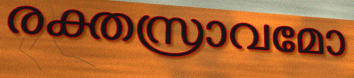
രക്തസ്രാവമോ